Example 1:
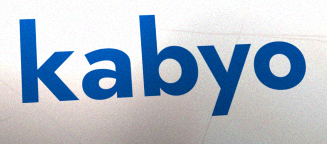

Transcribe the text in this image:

kabyo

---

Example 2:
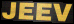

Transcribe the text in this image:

JEEV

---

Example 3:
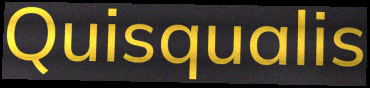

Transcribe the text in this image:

Quisqualis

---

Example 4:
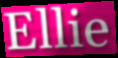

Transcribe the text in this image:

Ellie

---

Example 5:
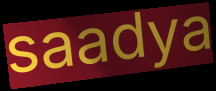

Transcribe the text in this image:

saadya